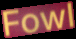
Fowl